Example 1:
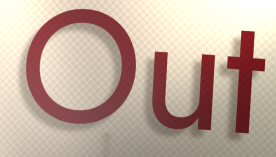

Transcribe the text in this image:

Out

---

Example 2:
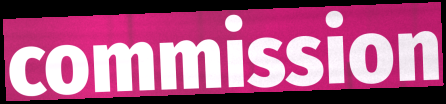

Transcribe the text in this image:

commission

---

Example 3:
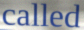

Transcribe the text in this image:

called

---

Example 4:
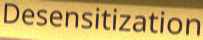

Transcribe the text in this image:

Desensitization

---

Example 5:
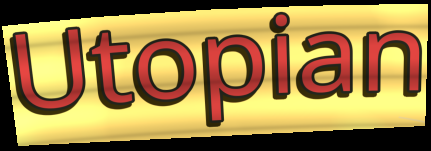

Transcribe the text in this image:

Utopian